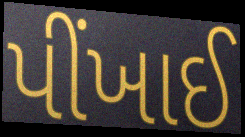
પીંખાઈ